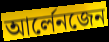
আৰ্লেনজেন